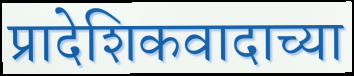
प्रादेशिकवादाच्या